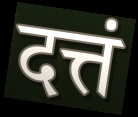
दत्तं